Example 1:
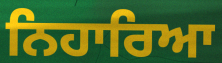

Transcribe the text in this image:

ਨਿਹਾਰਿਆ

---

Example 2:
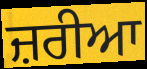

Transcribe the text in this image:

ਜ਼ਰੀਆ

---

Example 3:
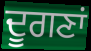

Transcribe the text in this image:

ਦੂਗਣਾਂ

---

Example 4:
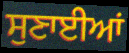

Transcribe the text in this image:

ਸੁਣਾਈਆਂ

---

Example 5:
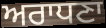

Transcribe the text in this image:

ਅਰਾਧਣਾ